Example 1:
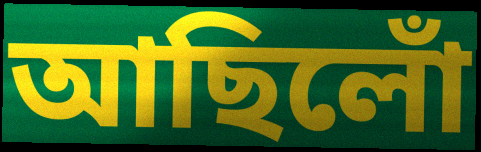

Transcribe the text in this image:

আছিলোঁ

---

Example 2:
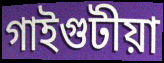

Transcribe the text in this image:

গাইগুটীয়া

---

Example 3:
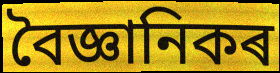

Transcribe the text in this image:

বৈজ্ঞানিকৰ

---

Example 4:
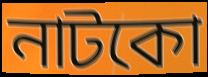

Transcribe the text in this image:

নাটকো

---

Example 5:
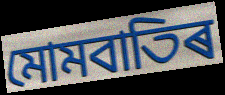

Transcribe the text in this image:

মোমবাতিৰ